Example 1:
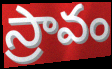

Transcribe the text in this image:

స్రావం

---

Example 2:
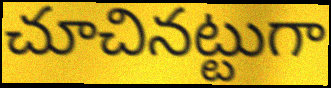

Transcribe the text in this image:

చూచినట్టుగా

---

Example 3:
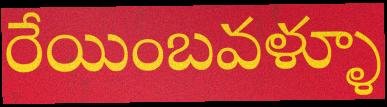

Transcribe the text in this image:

రేయింబవళ్ళూ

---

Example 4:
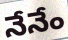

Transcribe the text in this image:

నేనేం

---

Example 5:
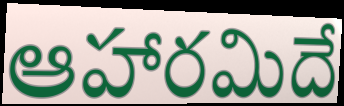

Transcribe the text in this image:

ఆహారమిదే